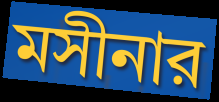
মসীনার